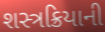
શસ્ત્રક્રિયાની